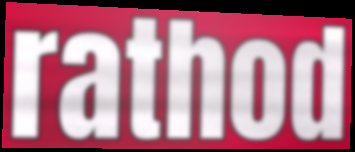
rathod